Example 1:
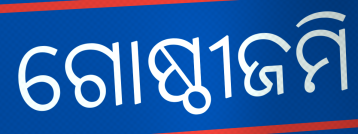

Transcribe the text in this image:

ଗୋଷ୍ଠୀଜମି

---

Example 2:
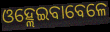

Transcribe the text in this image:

ଓହ୍ଲେଇବାବେଳେ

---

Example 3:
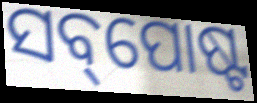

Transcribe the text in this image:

ସବ୍‌ପୋଷ୍ଟ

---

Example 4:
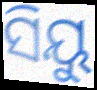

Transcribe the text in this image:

ସିୟୁ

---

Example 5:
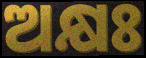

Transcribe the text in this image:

ଅକ୍ଷଃ